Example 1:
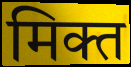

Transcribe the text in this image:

मिक्त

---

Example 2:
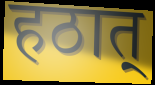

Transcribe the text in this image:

हठात्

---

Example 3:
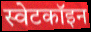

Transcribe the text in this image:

स्वेटकॉइन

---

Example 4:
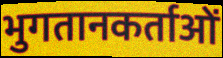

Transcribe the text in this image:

भुगतानकर्ताओं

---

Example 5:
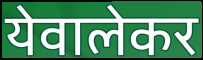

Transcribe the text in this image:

येवालेकर